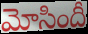
మోసిందీ